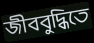
জীববুদ্ধিতে